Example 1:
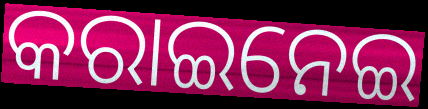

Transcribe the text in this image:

କରାଇନେଇ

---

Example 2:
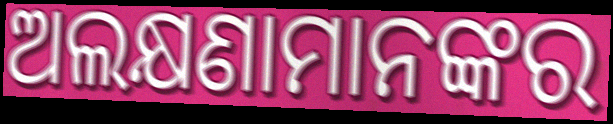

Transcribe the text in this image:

ଅଲକ୍ଷଣାମାନଙ୍କର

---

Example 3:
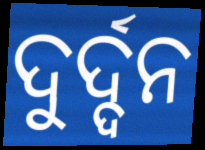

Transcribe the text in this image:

ଦୁର୍ଦ୍ଦନ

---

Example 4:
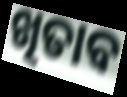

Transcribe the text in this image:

ଖିତାବ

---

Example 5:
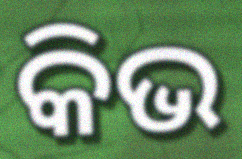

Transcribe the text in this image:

କିଭ